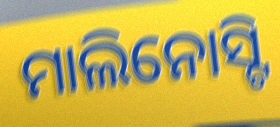
ମାଲିନୋସ୍ଟି